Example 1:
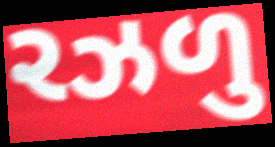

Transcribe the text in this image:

રઝળુ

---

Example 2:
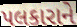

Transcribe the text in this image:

પલકારાને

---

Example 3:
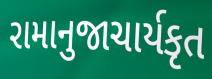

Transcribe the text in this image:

રામાનુજાચાર્યકૃત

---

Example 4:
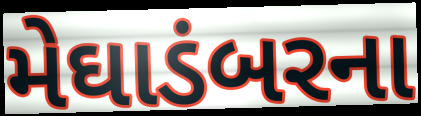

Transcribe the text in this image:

મેઘાડંબરના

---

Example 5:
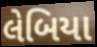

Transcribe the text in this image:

લેબિયા